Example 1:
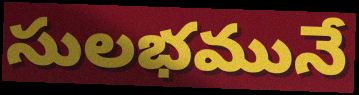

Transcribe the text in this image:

సులభమునే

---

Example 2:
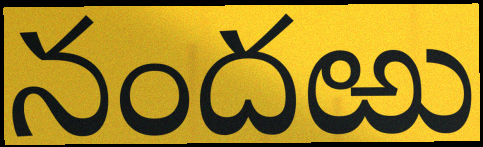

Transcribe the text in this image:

నందఱు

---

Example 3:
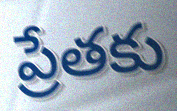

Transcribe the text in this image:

ప్రేతకు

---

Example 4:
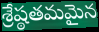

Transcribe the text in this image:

శ్రేష్ఠతమమైన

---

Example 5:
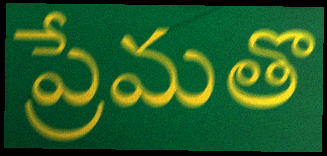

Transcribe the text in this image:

ప్రేమతొ